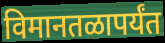
विमानतळापर्यंत